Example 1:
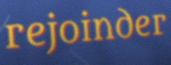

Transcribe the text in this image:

rejoinder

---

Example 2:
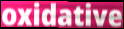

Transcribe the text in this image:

oxidative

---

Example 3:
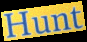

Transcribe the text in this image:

Hunt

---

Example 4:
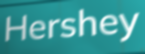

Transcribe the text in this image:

Hershey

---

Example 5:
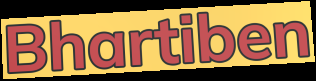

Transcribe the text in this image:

Bhartiben